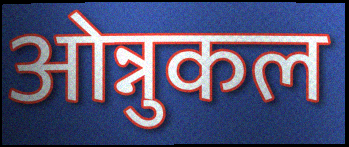
ओन्नुकल